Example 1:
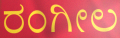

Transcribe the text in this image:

ರಂಗೀಲ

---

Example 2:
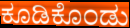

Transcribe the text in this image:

ಕೂಡಿಕೊಂಡು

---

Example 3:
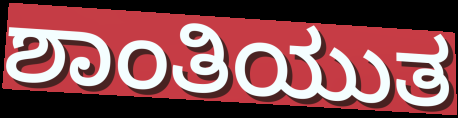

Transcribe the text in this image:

ಶಾಂತಿಯುತ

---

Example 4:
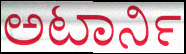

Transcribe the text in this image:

ಅಟಾರ್ನಿ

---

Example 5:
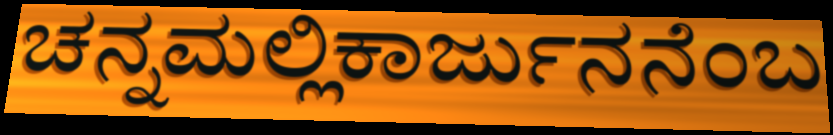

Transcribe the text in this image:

ಚನ್ನಮಲ್ಲಿಕಾರ್ಜುನನೆಂಬ